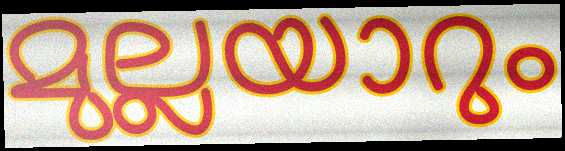
മുല്ലയാറും